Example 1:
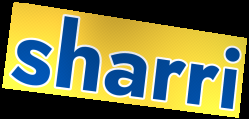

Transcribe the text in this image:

sharri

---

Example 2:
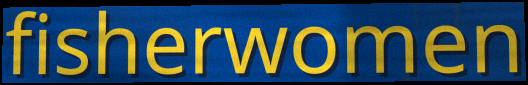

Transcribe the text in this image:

fisherwomen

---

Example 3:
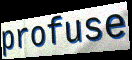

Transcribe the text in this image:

profuse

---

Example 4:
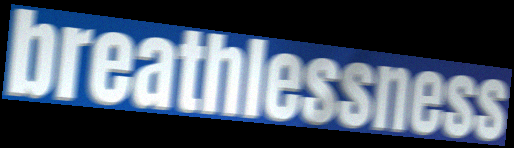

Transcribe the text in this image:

breathlessness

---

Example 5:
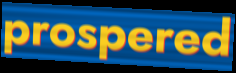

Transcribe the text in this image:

prospered